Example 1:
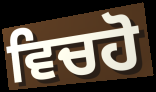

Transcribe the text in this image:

ਵਿਚਹੋ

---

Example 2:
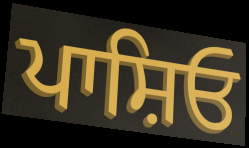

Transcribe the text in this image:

ਪਾਸ਼ਿਓ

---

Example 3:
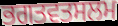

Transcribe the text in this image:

ਭਗਤਵਤਸਲਮ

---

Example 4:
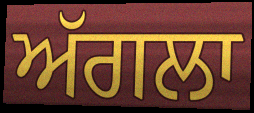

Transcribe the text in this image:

ਅੱਗਲਾ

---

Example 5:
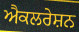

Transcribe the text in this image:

ਐਕਲਰੇਸ਼ਨ